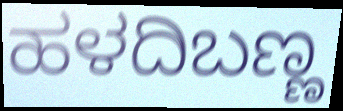
ಹಳದಿಬಣ್ಣ